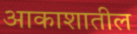
आकाशातील